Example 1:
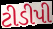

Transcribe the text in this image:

ટીડીપી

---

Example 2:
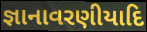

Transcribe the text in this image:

જ્ઞાનાવરણીયાદિ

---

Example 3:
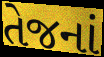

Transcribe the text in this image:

તેજનાં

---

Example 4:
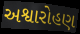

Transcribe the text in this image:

અશ્વારોહણ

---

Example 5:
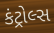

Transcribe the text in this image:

કંટ્રોલ્સ